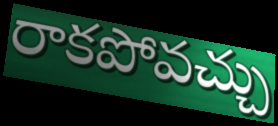
రాకపోవచ్చు